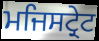
ਮਜਿਸਟ੍ਰੇਟ